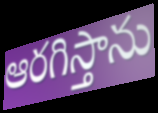
ఆరగిస్తాను